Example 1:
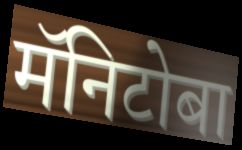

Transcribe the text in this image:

मॅनिटोबा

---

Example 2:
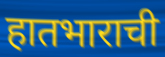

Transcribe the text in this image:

हातभाराची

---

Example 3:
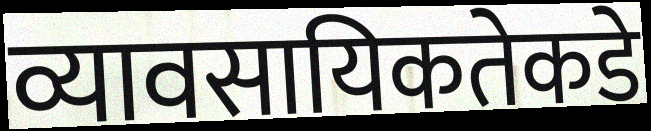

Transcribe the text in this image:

व्यावसायिकतेकडे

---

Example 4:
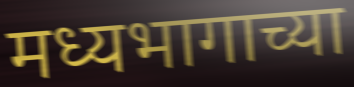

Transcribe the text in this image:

मध्यभागाच्या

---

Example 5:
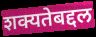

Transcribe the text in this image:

शक्यतेबद्दल